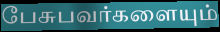
பேசுபவர்களையும்